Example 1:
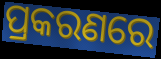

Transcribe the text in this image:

ପ୍ରକରଣରେ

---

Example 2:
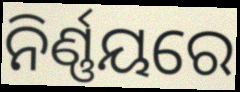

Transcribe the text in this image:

ନିର୍ଣ୍ଣୟରେ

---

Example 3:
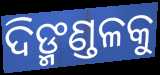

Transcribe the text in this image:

ଦିଙ୍ମଣ୍ଡଳକୁ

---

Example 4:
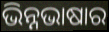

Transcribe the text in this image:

ଭିନ୍ନଭାଷାର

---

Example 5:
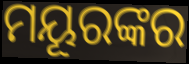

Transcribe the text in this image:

ମୟୂରଙ୍କର